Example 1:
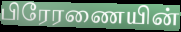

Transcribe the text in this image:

பிரேரணையின்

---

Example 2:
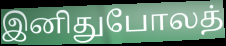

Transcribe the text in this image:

இனிதுபோலத்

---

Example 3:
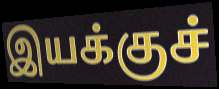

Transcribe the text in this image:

இயக்குச்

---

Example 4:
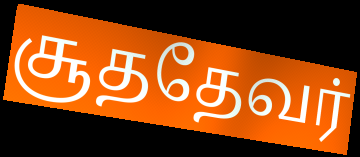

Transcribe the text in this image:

சூததேவர்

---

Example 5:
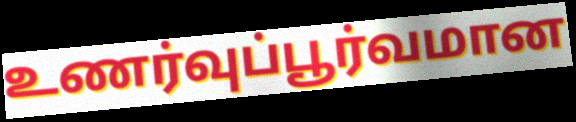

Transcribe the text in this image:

உணர்வுப்பூர்வமான